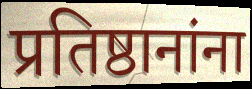
प्रतिष्ठानांना